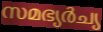
സമഭ്യർച്യ